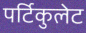
पर्टिकुलेट